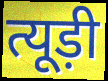
त्यूड़ी